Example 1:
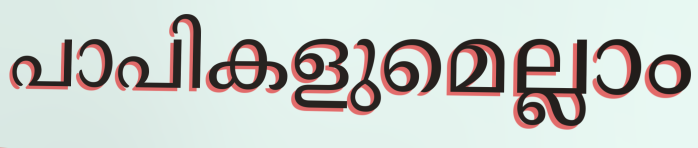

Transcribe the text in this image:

പാപികളുമെല്ലാം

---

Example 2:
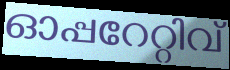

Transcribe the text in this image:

ഓപ്പറേറ്റിവ്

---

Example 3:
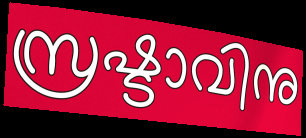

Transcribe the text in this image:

സ്രഷ്ടാവിനു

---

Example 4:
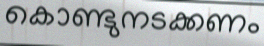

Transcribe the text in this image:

കൊണ്ടുനടക്കണം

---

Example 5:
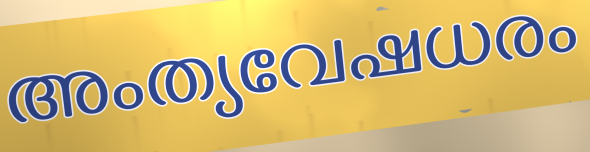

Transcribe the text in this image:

അംത്യവേഷധരം